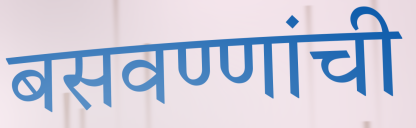
बसवण्णांची